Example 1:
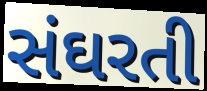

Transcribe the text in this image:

સંઘરતી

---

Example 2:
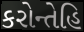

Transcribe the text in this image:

કરોન્તેહિ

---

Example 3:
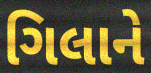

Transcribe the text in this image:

ગિલાને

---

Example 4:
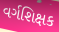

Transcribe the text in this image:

વર્ગશિક્ષક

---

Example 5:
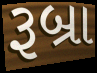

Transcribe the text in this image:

રૂબ્રા